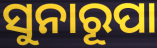
ସୁନାରୂପା